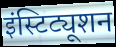
इंस्टिट्यूशन